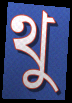
থু